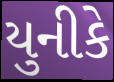
યુનીકે